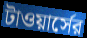
টাওয়ার্সের